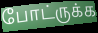
போட்ருக்க